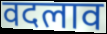
वदलाव